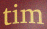
tim